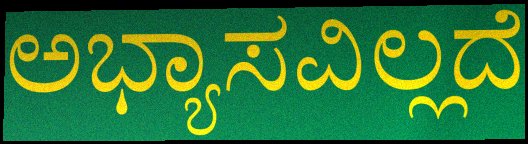
ಅಭ್ಯಾಸವಿಲ್ಲದೆ